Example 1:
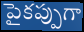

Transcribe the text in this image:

పైకప్పుగా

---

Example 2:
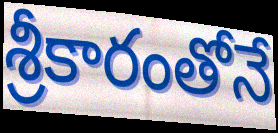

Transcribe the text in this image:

శ్రీకారంతోనే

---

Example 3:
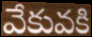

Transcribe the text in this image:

వేకువకి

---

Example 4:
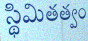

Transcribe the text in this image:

స్థిమితత్వం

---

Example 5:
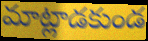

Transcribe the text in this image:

మాట్లాడకుండ